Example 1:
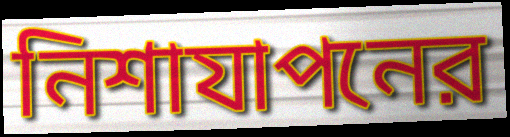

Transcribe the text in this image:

নিশাযাপনের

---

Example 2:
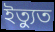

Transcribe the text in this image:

ইত্যুত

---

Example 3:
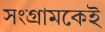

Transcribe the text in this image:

সংগ্রামকেই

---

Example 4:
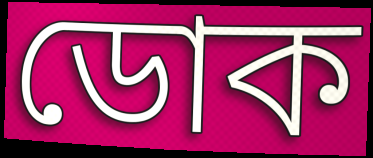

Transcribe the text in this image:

ডোক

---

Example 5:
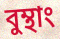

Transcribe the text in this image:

বুম্থাং